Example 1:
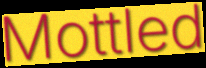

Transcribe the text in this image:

Mottled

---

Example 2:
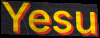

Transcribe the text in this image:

Yesu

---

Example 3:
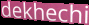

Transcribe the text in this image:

dekhechi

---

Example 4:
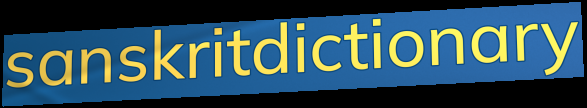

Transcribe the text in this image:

sanskritdictionary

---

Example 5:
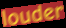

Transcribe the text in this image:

louder